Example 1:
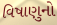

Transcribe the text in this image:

વિષાણુનો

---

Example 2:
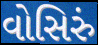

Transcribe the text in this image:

વોસિરું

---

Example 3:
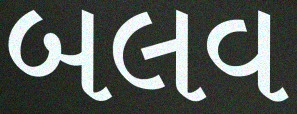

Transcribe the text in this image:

બલવ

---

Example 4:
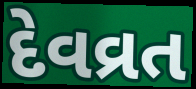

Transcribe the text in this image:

દેવવ્રત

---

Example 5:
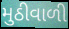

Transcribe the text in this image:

મુઠીવાળી